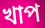
খাপ